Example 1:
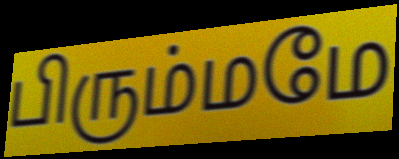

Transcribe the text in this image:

பிரும்மமே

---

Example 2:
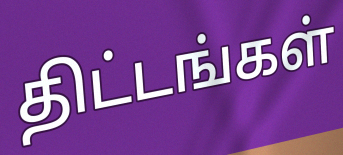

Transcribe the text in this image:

திட்டங்கள்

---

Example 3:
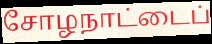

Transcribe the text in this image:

சோழநாட்டைப்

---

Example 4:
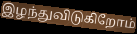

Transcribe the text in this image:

இழந்துவிடுகிறோம்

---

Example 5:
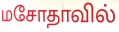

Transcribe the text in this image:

மசோதாவில்